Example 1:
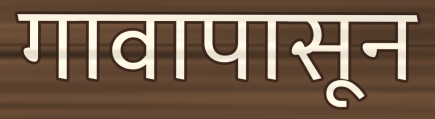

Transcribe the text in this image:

गावापासून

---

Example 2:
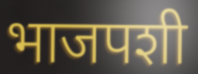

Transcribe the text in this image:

भाजपशी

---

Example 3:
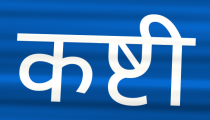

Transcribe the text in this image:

कष्टी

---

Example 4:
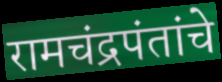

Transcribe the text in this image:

रामचंद्रपंतांचे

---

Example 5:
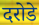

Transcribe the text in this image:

दरोडे